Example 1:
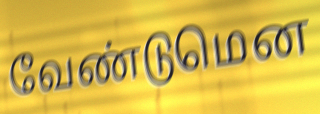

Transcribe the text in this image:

வேண்டுமென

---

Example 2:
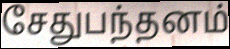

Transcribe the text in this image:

சேதுபந்தனம்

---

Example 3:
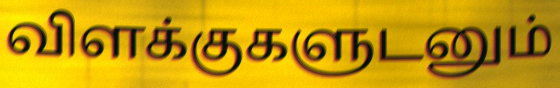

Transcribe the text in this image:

விளக்குகளுடனும்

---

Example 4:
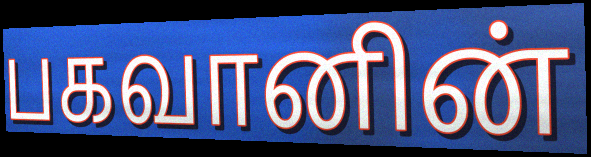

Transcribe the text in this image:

பகவானின்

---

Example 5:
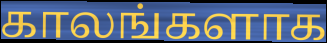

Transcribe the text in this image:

காலங்களாக